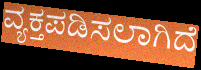
ವ್ಯಕ್ತಪಡಿಸಲಾಗಿದೆ